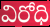
విరోధి